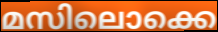
മസിലൊക്കെ